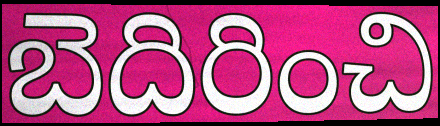
బెదిరించి